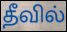
தீவில்